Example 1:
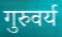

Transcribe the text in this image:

गुरुवर्य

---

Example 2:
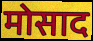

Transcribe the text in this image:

मोसाद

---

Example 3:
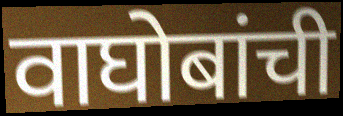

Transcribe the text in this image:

वाघोबांची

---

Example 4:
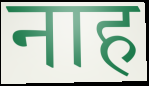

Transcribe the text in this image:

नाह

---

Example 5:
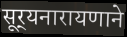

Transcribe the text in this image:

सूर्यनारायणाने